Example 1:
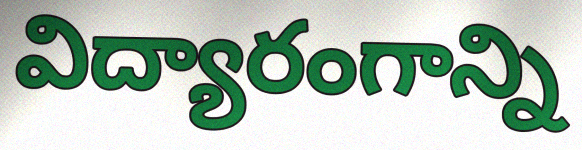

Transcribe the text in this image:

విద్యారంగాన్ని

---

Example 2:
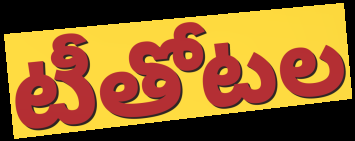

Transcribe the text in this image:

టీతోటల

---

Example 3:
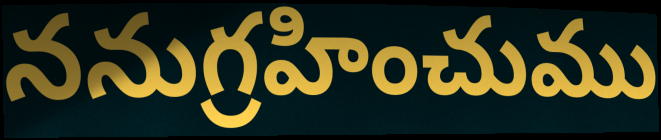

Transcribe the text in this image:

ననుగ్రహించుము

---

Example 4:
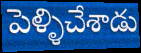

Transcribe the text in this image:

పెళ్ళిచేశాడు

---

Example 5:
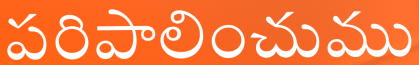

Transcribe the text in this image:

పరిపాలించుము